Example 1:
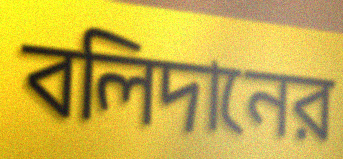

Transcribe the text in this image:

বলিদানের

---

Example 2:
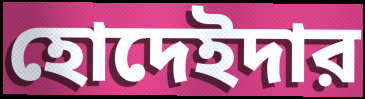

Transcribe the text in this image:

হোদেইদার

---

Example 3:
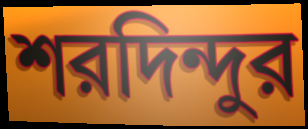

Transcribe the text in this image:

শরদিন্দুর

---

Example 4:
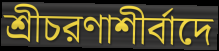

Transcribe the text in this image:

শ্রীচরণাশীর্বাদে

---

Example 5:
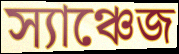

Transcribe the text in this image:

স্যাঞ্চেজ